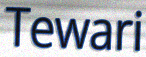
Tewari